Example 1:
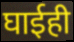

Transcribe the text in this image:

घाईही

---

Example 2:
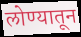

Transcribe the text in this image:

लोण्यातून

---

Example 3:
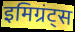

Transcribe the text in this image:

इमिग्रंट्स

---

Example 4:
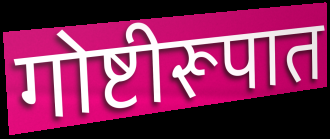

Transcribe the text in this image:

गोष्टीरूपात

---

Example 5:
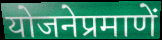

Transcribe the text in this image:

योजनेप्रमाणें